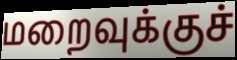
மறைவுக்குச்